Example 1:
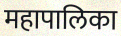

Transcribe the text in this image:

महापालिका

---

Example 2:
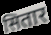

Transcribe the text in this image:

सितार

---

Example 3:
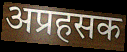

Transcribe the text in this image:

अप्रहसक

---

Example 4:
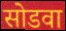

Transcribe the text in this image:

सोडवा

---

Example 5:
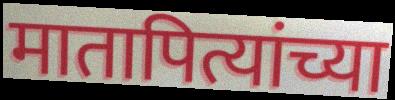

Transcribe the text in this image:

मातापित्यांच्या